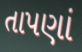
તાપણાં